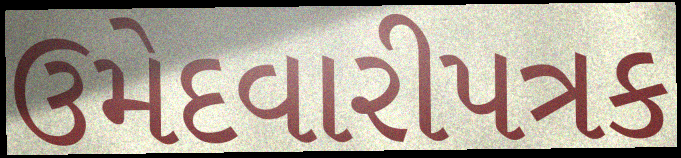
ઉમેદવારીપત્રક